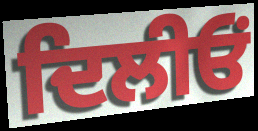
ਦਿਲੀਓਂ